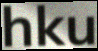
hku